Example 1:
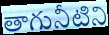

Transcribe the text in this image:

తాగునీటిని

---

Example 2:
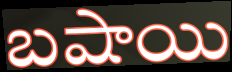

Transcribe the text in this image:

బషాయి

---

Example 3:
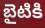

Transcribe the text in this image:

బైటికి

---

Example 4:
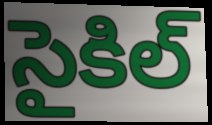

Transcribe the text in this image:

సైకిల్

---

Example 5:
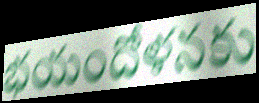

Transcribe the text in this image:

భయందోళనకు